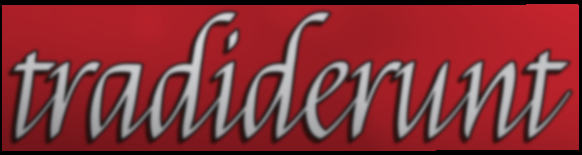
tradiderunt